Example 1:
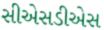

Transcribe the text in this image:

સીએસડીએસ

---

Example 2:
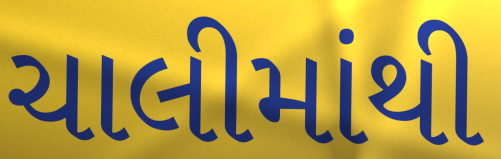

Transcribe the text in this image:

ચાલીમાંથી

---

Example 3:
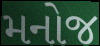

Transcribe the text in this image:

મનોજ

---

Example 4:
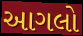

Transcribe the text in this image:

આગલો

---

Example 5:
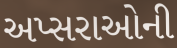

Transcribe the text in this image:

અપ્સરાઓની